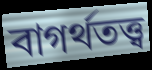
বাগর্থতত্ত্ব